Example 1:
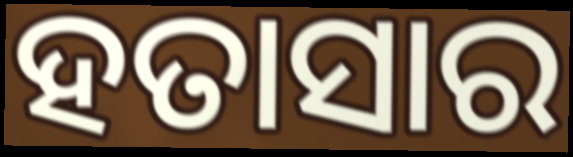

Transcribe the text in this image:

ହତାସାର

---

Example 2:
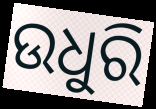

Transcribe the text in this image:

ଉଧୁରି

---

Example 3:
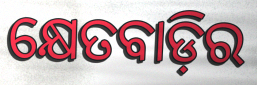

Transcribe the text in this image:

କ୍ଷେତବାଡ଼ିର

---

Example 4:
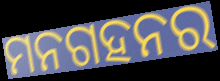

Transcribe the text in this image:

ମନଗହନର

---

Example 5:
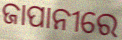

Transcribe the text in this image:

ଜାପାନୀରେ